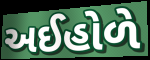
અઈહોળે